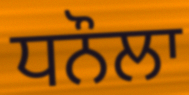
ਧਨੌਲਾ